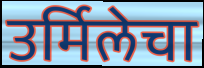
उर्मिलेचा